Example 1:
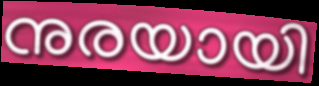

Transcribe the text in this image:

നുരയായി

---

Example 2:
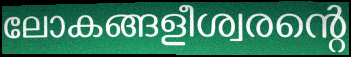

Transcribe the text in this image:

ലോകങ്ങളീശ്വരന്റെ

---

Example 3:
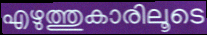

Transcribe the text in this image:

എഴുത്തുകാരിലൂടെ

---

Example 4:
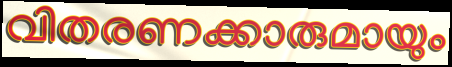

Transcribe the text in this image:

വിതരണക്കാരുമായും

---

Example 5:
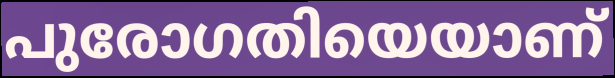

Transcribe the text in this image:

പുരോഗതിയെയാണ്